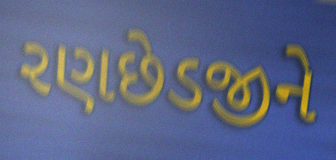
રણછેડજીને